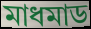
মাধমাড